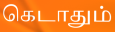
கெடாதும்